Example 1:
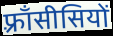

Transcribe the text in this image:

फ़्राँसीसियों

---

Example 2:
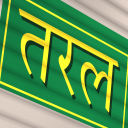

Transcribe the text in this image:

तरल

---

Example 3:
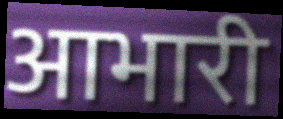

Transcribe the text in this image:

आभारी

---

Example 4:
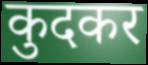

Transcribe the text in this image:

कुदकर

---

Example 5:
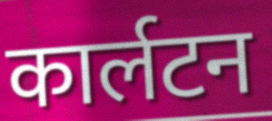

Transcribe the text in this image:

कार्लटन